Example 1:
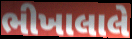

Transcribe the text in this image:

ભીખાલાલે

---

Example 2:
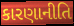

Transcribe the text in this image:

કારણાનીતિ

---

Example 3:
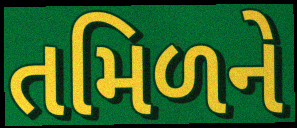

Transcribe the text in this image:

તમિળને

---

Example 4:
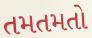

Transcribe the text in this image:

તમતમતો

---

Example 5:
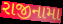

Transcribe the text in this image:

રાજીનામા